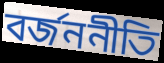
বর্জননীতি